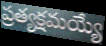
ప్రత్యక్షమయ్యే